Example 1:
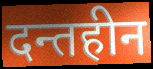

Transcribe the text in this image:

दन्तहीन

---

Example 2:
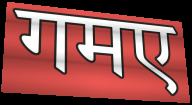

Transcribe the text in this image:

गमए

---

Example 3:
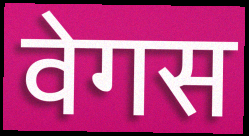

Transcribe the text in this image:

वेगस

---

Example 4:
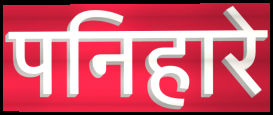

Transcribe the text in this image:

पनिहारे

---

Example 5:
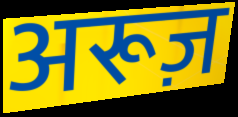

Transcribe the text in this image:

अरूज़